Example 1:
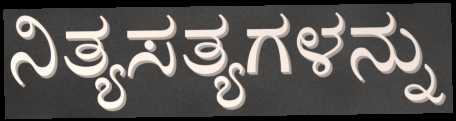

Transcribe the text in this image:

ನಿತ್ಯಸತ್ಯಗಳನ್ನು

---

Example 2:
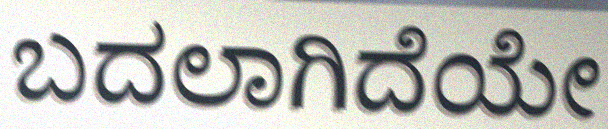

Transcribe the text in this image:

ಬದಲಾಗಿದೆಯೇ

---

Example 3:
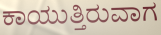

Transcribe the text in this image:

ಕಾಯುತ್ತಿರುವಾಗ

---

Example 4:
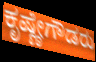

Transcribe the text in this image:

ಕೃಷ್ಣೇಗೌಡರು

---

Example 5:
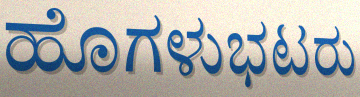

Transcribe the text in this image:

ಹೊಗಳುಭಟರು